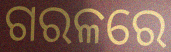
ଗରଳରେ